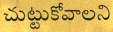
చుట్టుకోవాలని